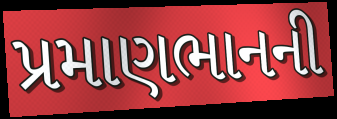
પ્રમાણભાનની